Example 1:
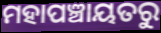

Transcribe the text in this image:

ମହାପଞ୍ଚାୟତରୁ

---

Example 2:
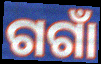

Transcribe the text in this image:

ଗଗାଁ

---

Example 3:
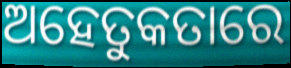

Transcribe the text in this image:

ଅହେତୁକତାରେ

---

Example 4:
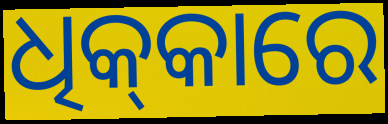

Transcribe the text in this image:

ଧିକ୍‌କାରେ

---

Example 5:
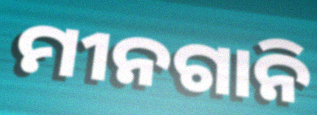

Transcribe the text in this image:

ମୀନଗାନି